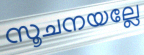
സൂചനയല്ലേ